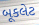
બૂકલેટ